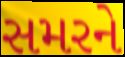
સમરને